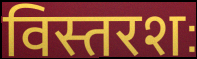
विस्तरशः